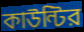
কাউন্টির